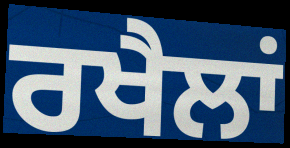
ਰਖੈਲਾਂ